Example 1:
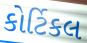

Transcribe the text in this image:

કોર્ટિકલ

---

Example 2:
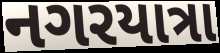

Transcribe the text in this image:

નગરયાત્રા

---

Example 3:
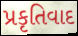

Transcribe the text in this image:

પ્રકૃતિવાદ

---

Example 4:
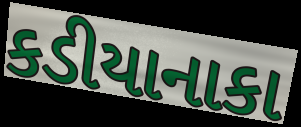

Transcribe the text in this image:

કડીયાનાકા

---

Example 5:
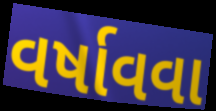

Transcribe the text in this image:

વર્ષાવવા